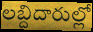
లబ్దిదారుల్లో